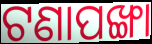
ଟଣାପଙ୍ଖା